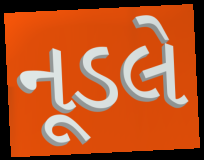
નૂડલે